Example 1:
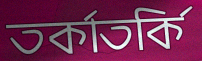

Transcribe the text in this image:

তৰ্কাতৰ্কি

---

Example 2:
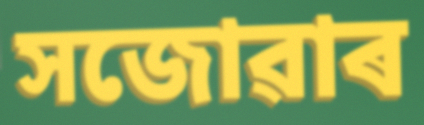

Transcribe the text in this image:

সজোৱাৰ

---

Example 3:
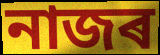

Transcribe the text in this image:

নাজৰ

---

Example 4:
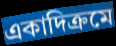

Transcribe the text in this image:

একাদিক্ৰমে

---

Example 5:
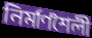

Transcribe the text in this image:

নিৰ্মাণশৈলী